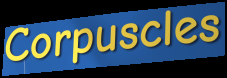
Corpuscles